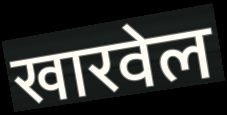
खारवेल